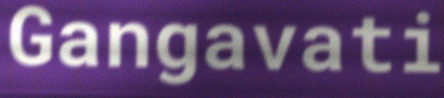
Gangavati